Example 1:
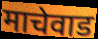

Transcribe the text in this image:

माचेवाड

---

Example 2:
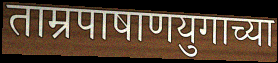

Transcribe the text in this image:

ताम्रपाषाणयुगाच्या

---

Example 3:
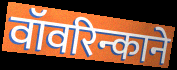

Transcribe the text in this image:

वॉवरिन्काने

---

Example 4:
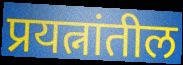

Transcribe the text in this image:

प्रयत्नांतील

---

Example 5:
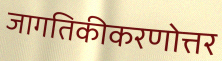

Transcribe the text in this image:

जागतिकीकरणोत्तर